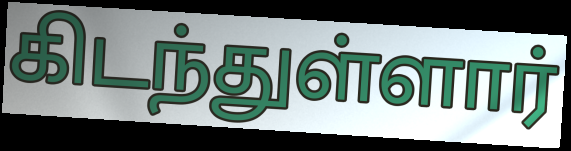
கிடந்துள்ளார்